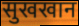
सुखखान